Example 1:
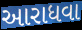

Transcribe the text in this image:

આરાધવા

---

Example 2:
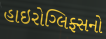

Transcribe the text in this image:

હાઇરોગ્લિફ્સનો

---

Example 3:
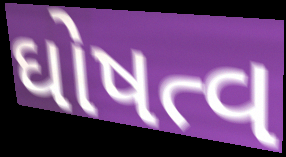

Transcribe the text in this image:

ઘોષત્વ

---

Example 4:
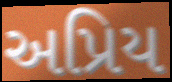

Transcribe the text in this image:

અપ્રિય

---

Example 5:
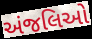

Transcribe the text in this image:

અંજલિઓ